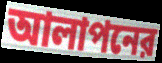
আলাপনের